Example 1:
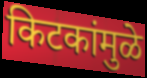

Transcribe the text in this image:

किटकांमुळे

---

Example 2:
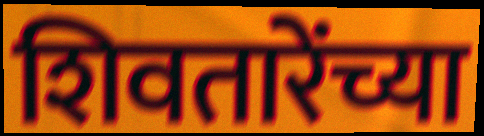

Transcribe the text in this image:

शिवतारेंच्या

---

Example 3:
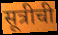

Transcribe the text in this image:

सूत्रीची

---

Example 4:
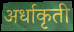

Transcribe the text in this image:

अर्धाकृती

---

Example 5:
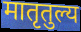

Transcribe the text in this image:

मातृतुल्य